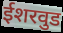
ईशरवुड